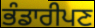
ਭੰਡਾਰੀਪਣ